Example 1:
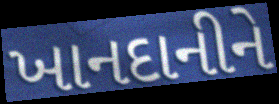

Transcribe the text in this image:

ખાનદાનીને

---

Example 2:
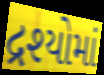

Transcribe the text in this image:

દ્રશ્યોમાં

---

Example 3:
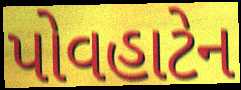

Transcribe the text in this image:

પોવહાટેન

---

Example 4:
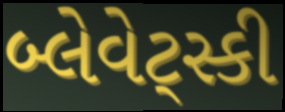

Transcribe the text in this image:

બ્લેવેટ્સ્કી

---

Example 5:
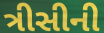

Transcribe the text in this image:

ત્રીસીની